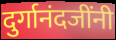
दुर्गानंदजींनी